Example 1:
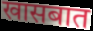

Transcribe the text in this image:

खासबात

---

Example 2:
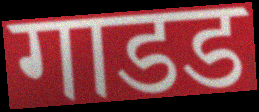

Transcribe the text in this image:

गाडड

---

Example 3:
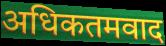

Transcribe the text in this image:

अधिकतमवाद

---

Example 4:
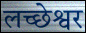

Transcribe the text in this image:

लच्छेश्वर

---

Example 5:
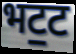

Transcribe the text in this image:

भट॒ट